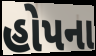
હોપના